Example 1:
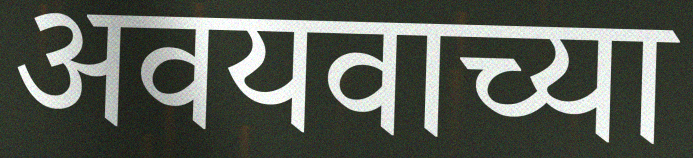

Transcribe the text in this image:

अवयवाच्या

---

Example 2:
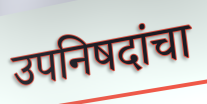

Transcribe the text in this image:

उपनिषदांचा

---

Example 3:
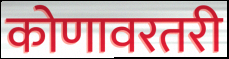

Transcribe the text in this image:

कोणावरतरी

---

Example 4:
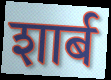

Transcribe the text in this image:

शार्ब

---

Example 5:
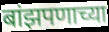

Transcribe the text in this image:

बांझपणाच्या